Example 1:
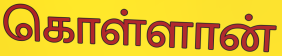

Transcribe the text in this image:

கொள்ளான்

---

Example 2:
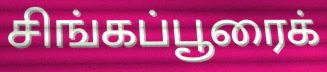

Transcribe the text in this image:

சிங்கப்பூரைக்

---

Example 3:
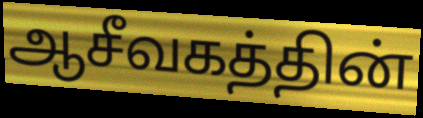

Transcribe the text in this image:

ஆசீவகத்தின்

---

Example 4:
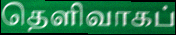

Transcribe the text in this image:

தெளிவாகப்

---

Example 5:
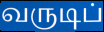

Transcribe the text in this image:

வருடிப்